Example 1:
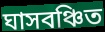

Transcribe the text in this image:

ঘাসবঞ্চিত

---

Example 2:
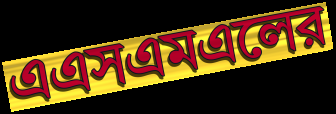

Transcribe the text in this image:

এএসএমএলের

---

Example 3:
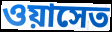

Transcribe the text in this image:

ওয়াসেত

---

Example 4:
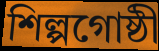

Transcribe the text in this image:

শিল্পগোষ্ঠী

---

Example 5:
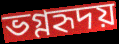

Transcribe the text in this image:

ভগ্নহৃদয়